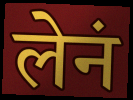
लेनं